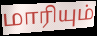
மாரியும்